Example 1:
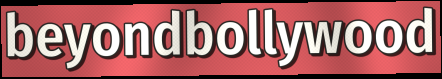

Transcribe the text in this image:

beyondbollywood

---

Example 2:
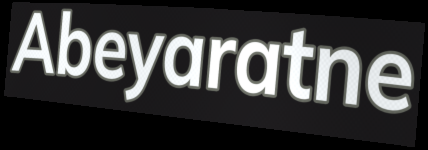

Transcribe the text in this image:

Abeyaratne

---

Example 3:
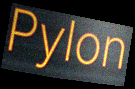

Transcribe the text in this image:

Pylon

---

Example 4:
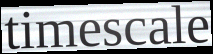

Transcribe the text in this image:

timescale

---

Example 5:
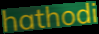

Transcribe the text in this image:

hathodi